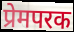
प्रेमपरक